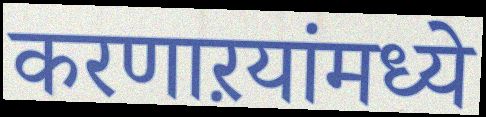
करणाऱयांमध्ये